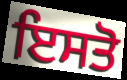
ਇਸਤੋ